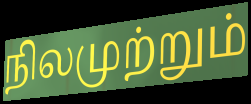
நிலமுற்றும்